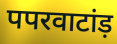
पपरवाटांड़